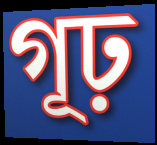
গূঢ়